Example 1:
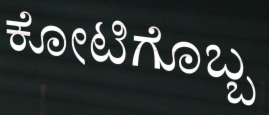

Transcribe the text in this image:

ಕೋಟಿಗೊಬ್ಬ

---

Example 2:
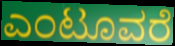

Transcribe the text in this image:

ಎಂಟೂವರೆ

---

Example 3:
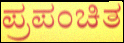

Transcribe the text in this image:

ಪ್ರಪಂಚಿತ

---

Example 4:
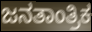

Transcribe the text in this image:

ಜನತಾಂತ್ರಿಕ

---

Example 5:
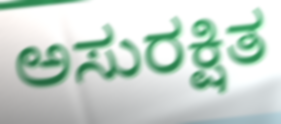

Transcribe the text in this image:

ಅಸುರಕ್ಷಿತ